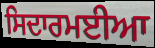
ਸਿਦਾਰਮਈਆ